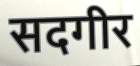
सदगीर